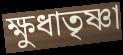
ক্ষুধাতৃষ্ণা